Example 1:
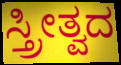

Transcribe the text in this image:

ಸ್ತ್ರೀತ್ವದ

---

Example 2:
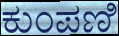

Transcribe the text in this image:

ಕುಂಪಣಿ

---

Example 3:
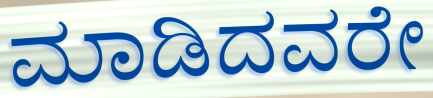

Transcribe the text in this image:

ಮಾಡಿದವರೇ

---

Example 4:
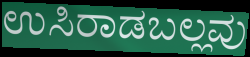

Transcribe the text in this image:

ಉಸಿರಾಡಬಲ್ಲವು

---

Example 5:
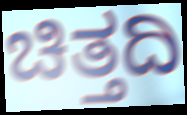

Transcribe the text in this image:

ಚಿತ್ತದಿ